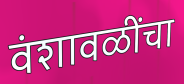
वंशावळींचा